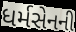
ધર્મસેનની